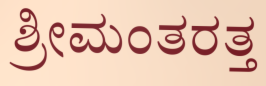
ಶ್ರೀಮಂತರತ್ತ